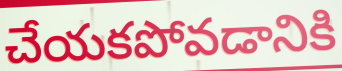
చేయకపోవడానికి